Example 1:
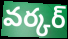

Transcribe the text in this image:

వర్కర్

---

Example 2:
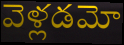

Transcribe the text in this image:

వెళ్లడమో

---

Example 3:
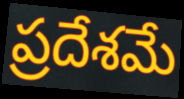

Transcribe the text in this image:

ప్రదేశమే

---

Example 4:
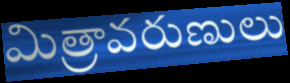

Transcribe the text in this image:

మిత్రావరుణులు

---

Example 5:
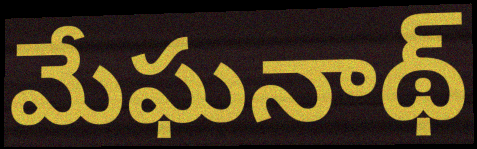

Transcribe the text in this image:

మేఘనాథ్